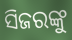
ସିଜରଙ୍କୁ